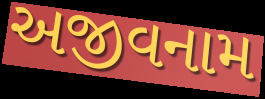
અજીવનામ